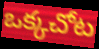
ఒక్కచోట